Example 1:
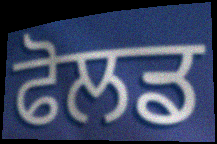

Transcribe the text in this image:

ਫੋਲਡ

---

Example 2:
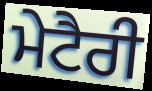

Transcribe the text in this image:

ਮੇਟੈਰੀ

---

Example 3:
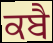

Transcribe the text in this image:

ਕਬੈ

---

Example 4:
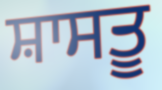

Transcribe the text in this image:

ਸ਼ਾਸਤੂ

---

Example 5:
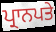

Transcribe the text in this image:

ਪ੍ਰਾਨਪਤੇ